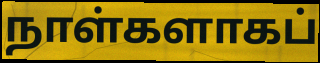
நாள்களாகப்